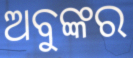
ଅବୁଙ୍କର